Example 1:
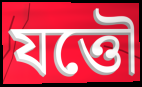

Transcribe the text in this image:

যত্তৌ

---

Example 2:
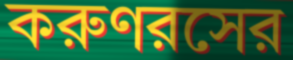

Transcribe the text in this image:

করুণরসের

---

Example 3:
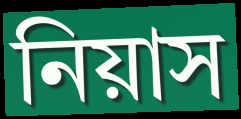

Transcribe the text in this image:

নিয়াস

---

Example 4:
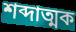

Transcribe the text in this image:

শব্দাত্মক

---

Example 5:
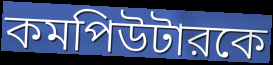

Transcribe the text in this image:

কমপিউটারকে